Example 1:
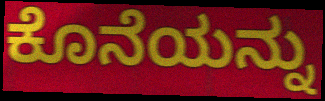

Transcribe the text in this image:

ಕೊನೆಯನ್ನು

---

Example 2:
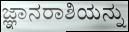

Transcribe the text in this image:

ಜ್ಞಾನರಾಶಿಯನ್ನು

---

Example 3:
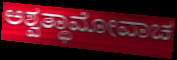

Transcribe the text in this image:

ಅಶ್ವತ್ಥಾಮೋವಾಚ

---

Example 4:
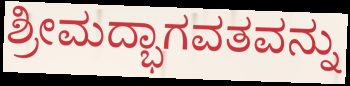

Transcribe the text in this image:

ಶ್ರೀಮದ್ಭಾಗವತವನ್ನು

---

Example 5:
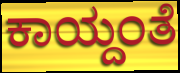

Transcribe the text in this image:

ಕಾಯ್ದಂತೆ